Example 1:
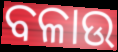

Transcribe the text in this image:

ବଳାଉ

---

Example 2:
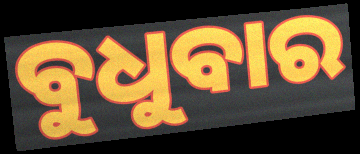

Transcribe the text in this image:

ବୁଧୁବାର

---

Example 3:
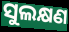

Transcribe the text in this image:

ସୁଲକ୍ଷଣ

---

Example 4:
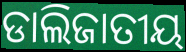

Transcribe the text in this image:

ଡାଲିଜାତୀୟ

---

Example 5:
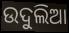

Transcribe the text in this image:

ଉଦୁଲିଆ